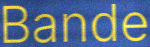
Bande